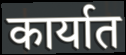
कार्यात